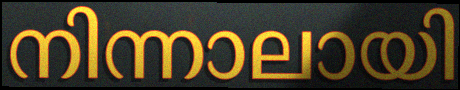
നിന്നാലായി